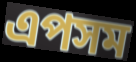
এপসম